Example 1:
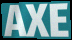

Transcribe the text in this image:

AXE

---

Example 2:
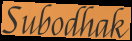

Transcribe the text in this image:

Subodhak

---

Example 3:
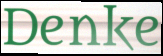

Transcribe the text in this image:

Denke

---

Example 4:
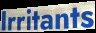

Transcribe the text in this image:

Irritants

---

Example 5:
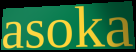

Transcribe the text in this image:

asoka